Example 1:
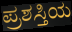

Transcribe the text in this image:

ಪ್ರಶಸ್ತಿಯ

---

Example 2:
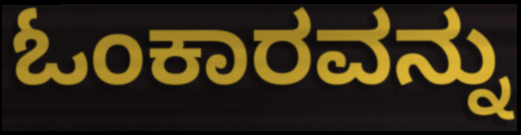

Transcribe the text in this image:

ಓಂಕಾರವನ್ನು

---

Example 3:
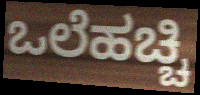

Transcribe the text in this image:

ಒಲೆಹಚ್ಚಿ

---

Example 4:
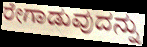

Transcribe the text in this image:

ರೇಗಾಡುವುದನ್ನು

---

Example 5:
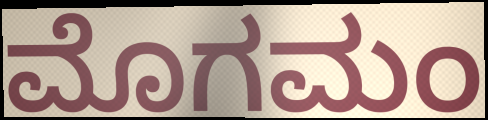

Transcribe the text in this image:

ಮೊಗಮಂ